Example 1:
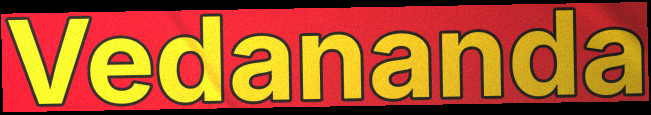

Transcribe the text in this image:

Vedananda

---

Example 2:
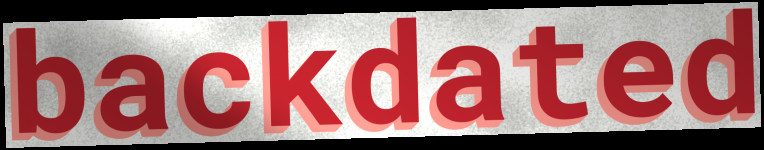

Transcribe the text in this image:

backdated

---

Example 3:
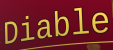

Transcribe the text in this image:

Diable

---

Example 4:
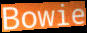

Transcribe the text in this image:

Bowie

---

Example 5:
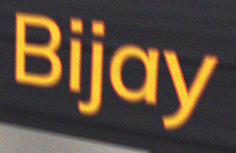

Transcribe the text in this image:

Bijay